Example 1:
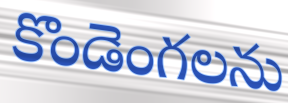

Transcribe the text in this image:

కొండెంగలను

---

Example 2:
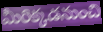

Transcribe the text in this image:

మీరిక్కడనుంచి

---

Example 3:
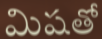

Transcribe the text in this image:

మిషతో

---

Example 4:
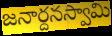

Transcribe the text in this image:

జనార్దనస్వామి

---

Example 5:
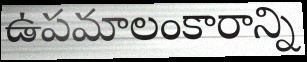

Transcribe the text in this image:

ఉపమాలంకారాన్ని